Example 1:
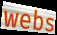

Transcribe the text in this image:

webs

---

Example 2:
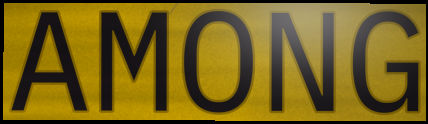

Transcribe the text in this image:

AMONG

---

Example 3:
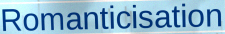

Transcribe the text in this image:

Romanticisation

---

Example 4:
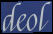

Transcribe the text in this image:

deol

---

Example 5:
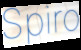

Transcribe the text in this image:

Spiro